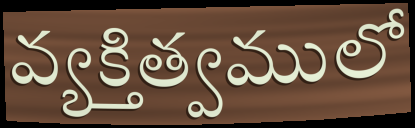
వ్యక్తిత్వములో